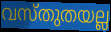
വസ്തുതയല്ല